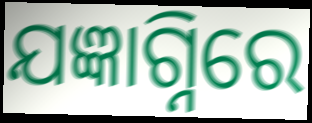
ଯଜ୍ଞାଗ୍ନିରେ